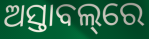
ଅସ୍ତାବଲ୍‌ରେ